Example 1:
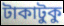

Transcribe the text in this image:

টাকাটুকু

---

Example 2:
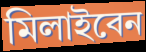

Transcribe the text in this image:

মিলাইবেন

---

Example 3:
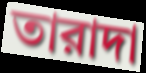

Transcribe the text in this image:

তারাদা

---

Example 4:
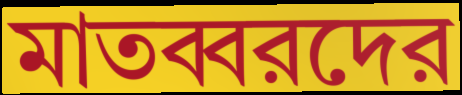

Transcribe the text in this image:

মাতব্বরদের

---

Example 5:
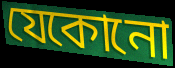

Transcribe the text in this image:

যেকোনো